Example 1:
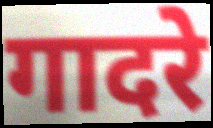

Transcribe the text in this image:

गादरे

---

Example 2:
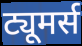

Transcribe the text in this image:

ट्यूमर्स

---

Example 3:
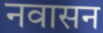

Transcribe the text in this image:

नवासन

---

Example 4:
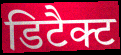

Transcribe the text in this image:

डिटैक्ट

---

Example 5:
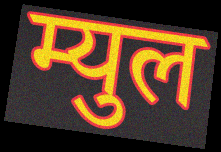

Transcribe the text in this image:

म्युल